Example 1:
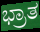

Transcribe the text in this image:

ಭ್ರಾತ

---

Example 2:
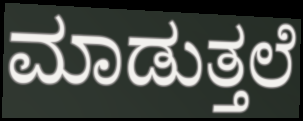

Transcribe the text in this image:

ಮಾಡುತ್ತಲೆ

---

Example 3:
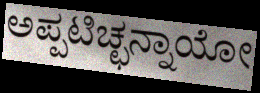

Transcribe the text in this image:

ಅಪ್ಪಟಿಚ್ಛನ್ನಾಯೋ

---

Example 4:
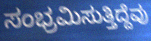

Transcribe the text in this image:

ಸಂಭ್ರಮಿಸುತ್ತಿದ್ದೆವು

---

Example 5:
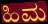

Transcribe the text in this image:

ಹಿಮ